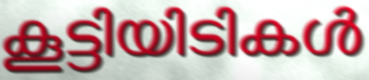
കൂട്ടിയിടികൾ